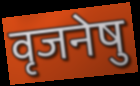
वृजनेषु